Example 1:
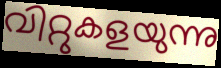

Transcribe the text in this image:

വിറ്റുകളയുന്നു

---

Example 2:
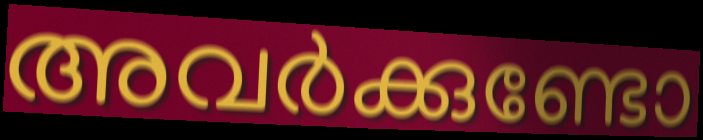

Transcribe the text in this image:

അവർക്കുണ്ടോ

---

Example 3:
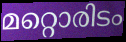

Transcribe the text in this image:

മറ്റൊരിടം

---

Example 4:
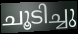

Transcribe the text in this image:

ചൂടിച്ചു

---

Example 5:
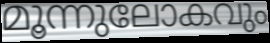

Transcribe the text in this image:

മൂന്നുലോകവും